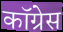
कॉग्रेस